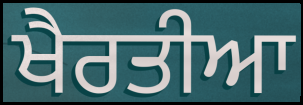
ਖੈਰਤੀਆ